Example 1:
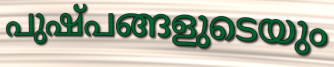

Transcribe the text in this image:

പുഷ്പങ്ങളുടെയും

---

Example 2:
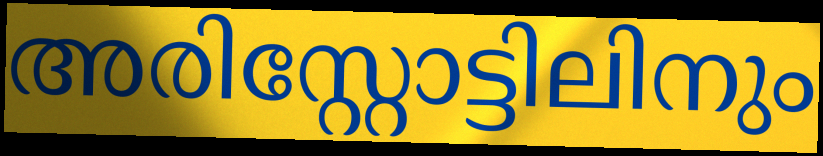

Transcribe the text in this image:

അരിസ്റ്റോട്ടിലിനും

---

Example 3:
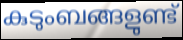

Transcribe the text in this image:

കുടുംബങ്ങളുണ്ട്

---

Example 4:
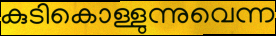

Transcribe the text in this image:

കുടികൊള്ളുന്നുവെന്ന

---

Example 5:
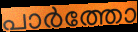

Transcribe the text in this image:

പാർത്തോ